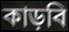
কাড়বি